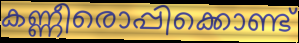
കണ്ണീരൊപ്പിക്കൊണ്ട്